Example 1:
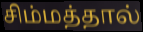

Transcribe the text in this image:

சிம்மத்தால்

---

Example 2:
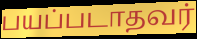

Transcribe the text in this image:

பயப்படாதவர்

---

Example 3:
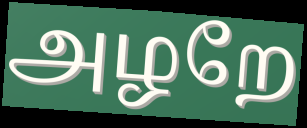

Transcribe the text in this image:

அழறே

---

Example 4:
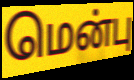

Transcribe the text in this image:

மென்பு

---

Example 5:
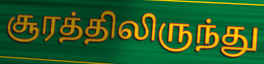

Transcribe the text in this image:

சூரத்திலிருந்து